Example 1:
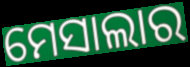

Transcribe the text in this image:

ମେସାଲାର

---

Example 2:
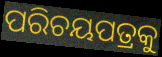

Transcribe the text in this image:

ପରିଚୟପତ୍ରକୁ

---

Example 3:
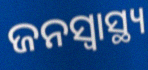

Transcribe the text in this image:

ଜନସ୍ବାସ୍ଥ୍ୟ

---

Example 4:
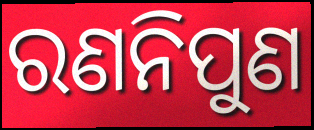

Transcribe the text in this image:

ରଣନିପୁଣ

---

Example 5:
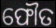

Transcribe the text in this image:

ଫୌତ